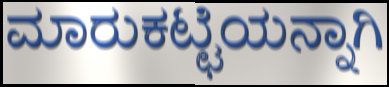
ಮಾರುಕಟ್ಟೆಯನ್ನಾಗಿ